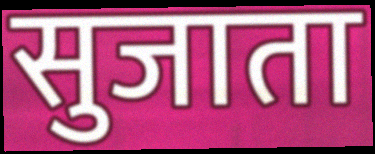
सुजाता